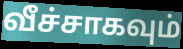
வீச்சாகவும்